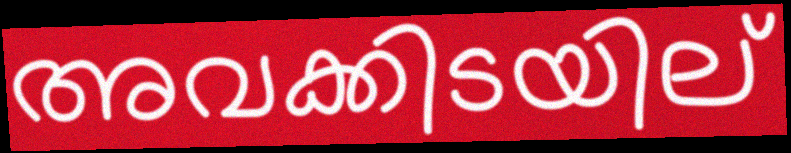
അവക്കിടയില്